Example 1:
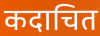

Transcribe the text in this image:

कदाचित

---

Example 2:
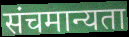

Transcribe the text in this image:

संचमान्यता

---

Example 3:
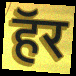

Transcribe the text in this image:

हॅर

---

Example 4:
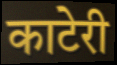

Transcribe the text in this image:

काटेरी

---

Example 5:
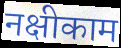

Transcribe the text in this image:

नक्षीकाम